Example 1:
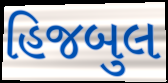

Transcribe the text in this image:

હિજબુલ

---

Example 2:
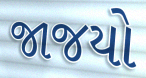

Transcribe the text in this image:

જાજયો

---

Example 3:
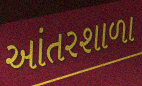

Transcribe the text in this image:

આંતરશાળા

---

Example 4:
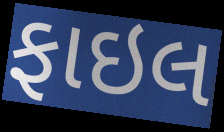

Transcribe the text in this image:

ફાઇલ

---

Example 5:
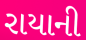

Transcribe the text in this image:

રાયાની